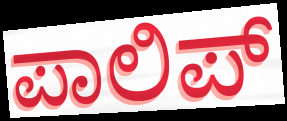
ಪಾಲಿಪ್